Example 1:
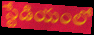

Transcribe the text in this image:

స్టేడియంలో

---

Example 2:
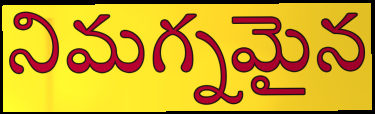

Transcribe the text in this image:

నిమగ్నమైన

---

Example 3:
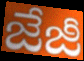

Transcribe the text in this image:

జేజీ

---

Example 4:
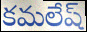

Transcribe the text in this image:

కమలేష్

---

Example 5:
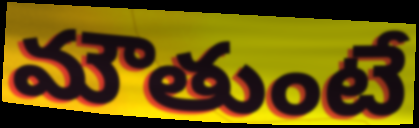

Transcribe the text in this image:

మౌతుంటే